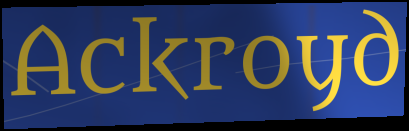
Ackroyd